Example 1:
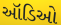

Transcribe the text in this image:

ઑડિઓ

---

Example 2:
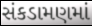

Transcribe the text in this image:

સંકડામણમાં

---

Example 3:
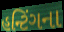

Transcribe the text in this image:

હન્ટિંગના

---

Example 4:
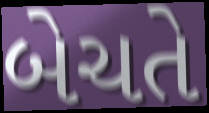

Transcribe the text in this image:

બેચતે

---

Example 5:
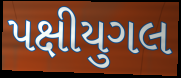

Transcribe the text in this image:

પક્ષીયુગલ